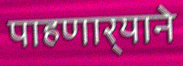
पाहणार्‍याने